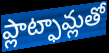
ప్లాట్ఫామ్లతో